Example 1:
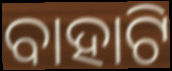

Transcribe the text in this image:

ବାହାଟି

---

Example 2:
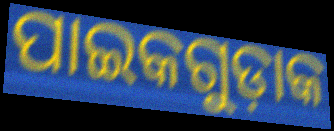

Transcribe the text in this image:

ପାଇକଗୁଡ଼ାକ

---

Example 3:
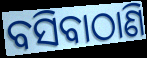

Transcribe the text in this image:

ବସିବାଠାଣି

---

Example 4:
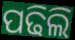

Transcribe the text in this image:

ପଢିଲି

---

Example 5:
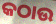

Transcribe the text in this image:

କଠାଉ